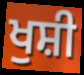
ਖੁਸ਼ੀ